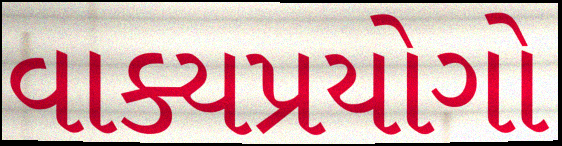
વાક્યપ્રયોગો